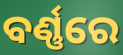
ବର୍ଣ୍ଣରେ